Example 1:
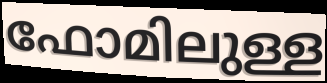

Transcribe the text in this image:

ഫോമിലുള്ള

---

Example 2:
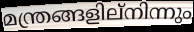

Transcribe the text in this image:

മന്ത്രങ്ങളില്നിന്നും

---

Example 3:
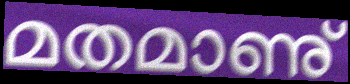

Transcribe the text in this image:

മതമാണു്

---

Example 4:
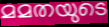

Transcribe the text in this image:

മമതയുടെ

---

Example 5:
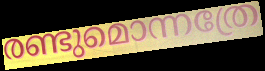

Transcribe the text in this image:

രണ്ടുമൊന്നത്രേ